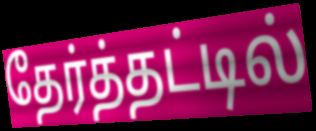
தேர்த்தட்டில்